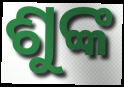
ଶୁଙ୍କ